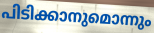
പിടിക്കാനുമൊന്നും